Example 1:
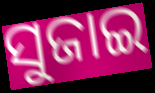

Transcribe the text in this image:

ସୁଜାଇ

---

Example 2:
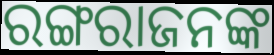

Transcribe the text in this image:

ରଙ୍ଗରାଜନଙ୍କ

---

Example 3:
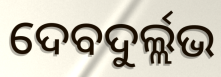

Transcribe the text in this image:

ଦେବଦୁର୍ଲ୍ଲଭ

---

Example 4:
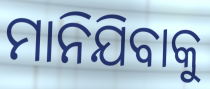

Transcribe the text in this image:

ମାନିଯିବାକୁ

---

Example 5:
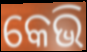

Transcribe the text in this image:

କେଭି